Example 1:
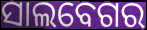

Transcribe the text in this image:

ସାଲବେଗର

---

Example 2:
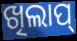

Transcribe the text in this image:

ଖିଲାପ୍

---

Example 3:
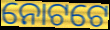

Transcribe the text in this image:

ନୋଟଟେ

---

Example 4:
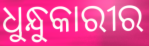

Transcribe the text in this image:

ଧୁନ୍ଧୁକାରୀର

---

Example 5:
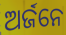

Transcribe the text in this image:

ଅର୍ଜନେ